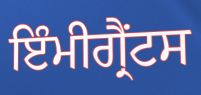
ਇੰਮੀਗ੍ਰੈਂਟਸ